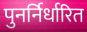
पुनर्निर्धारित